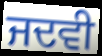
ਜਦਵੀ